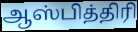
ஆஸ்பித்திரி